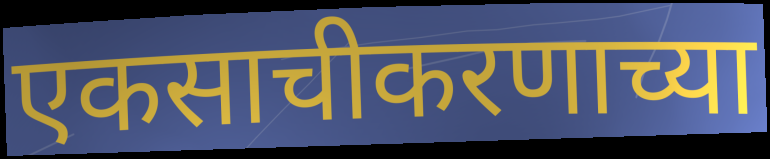
एकसाचीकरणाच्या